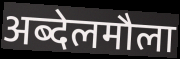
अब्देलमौला